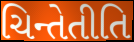
ચિન્તેતીતિ